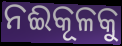
ନଈକୂଳକୁ